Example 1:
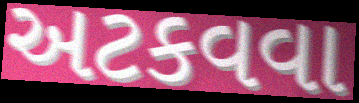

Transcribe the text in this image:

અટકવવા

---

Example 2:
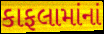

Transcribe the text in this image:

કાફલામાંનાં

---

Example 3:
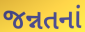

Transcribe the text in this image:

જન્નતનાં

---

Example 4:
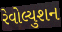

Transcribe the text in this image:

રેવોલ્યુશન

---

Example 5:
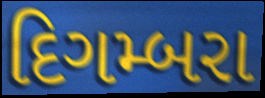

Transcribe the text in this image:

દિગમ્બરા